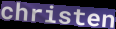
christen